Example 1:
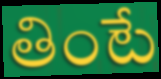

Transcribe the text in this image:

తింటే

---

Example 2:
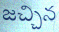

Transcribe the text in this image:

జచ్చిన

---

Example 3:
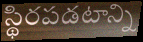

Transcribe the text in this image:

స్థిరపడటాన్ని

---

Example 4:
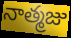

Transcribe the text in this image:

నాత్మజు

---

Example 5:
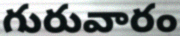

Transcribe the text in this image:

గురువారం